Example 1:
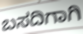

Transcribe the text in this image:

ಬಸದಿಗಾಗಿ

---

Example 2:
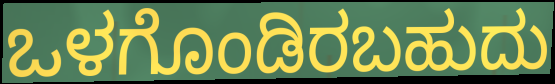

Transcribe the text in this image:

ಒಳಗೊಂಡಿರಬಹುದು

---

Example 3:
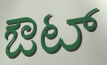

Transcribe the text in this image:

ಔಟ್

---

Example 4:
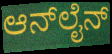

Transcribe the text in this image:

ಆನ್‍ಲೈನ್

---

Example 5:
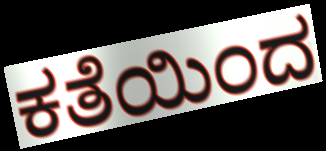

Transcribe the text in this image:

ಕತೆಯಿಂದ